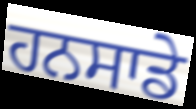
ਹਨਸਾਡੇ